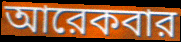
আরেকবার